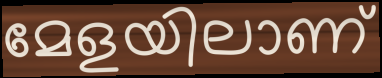
മേളയിലാണ്